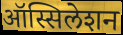
ऑस्सिलेशन